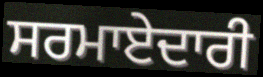
ਸਰਮਾਏਦਾਰੀ